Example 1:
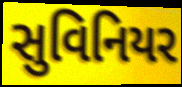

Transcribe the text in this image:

સુવિનિયર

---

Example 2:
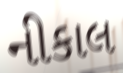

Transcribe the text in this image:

નીકાલ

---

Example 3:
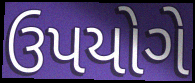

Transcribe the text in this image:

ઉપયોગે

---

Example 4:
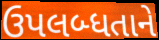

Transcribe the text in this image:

ઉપલબ્ધતાને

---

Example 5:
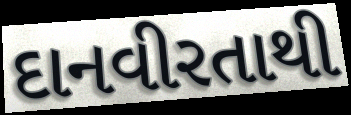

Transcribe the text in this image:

દાનવીરતાથી